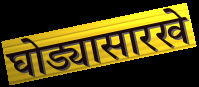
घोड्यासारखे